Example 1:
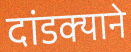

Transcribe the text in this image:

दांडक्याने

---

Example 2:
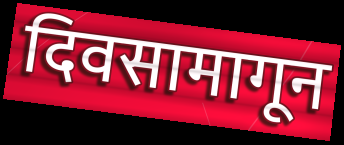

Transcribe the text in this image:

दिवसामागून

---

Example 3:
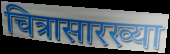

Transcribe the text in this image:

चित्रासारख्या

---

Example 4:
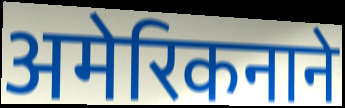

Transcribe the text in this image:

अमेरिकनाने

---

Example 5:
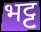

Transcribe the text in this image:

भट्ट